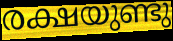
രക്ഷയുണ്ടു